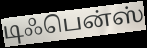
டிஃபென்ஸ்